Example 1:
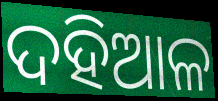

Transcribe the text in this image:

ଦହିଆଳ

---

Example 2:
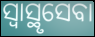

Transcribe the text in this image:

ସ୍ୱାସ୍ଥୃସେବା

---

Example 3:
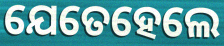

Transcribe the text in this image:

ଯେତେହେଲେ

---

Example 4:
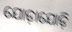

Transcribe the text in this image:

ଯୋଡ଼ାଯୋଡ଼ି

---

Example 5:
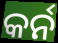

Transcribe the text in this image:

କର୍ନ